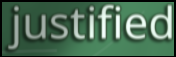
justified